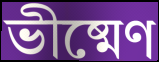
ভীষ্মেণ